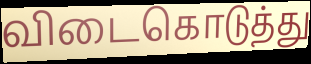
விடைகொடுத்து